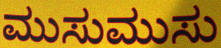
ಮುಸುಮುಸು